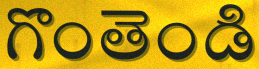
గొంతెండి